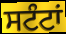
ਸਟੰਟਾਂ